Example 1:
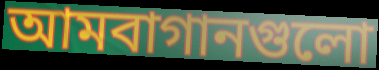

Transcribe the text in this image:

আমবাগানগুলো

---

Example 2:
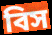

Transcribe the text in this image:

বিস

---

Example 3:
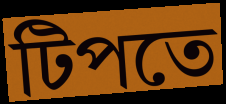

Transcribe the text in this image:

টিপতে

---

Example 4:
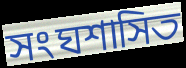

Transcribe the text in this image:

সংঘশাসিত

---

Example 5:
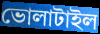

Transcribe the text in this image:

ভোলাটাইল